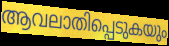
ആവലാതിപ്പെടുകയും